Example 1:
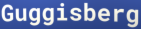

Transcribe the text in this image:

Guggisberg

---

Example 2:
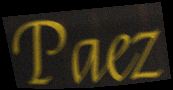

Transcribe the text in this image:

Paez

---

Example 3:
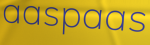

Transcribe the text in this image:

aaspaas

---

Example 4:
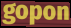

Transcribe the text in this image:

gopon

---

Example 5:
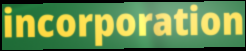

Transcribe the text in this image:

incorporation